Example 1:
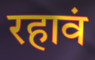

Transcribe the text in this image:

रहावं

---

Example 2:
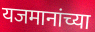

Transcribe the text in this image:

यजमानांच्या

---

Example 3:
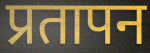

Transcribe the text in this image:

प्रतापन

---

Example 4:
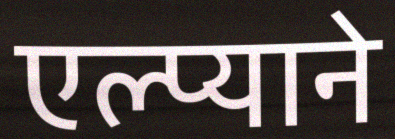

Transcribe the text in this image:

एल्प्याने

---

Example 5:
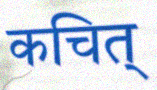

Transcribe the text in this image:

कचित्